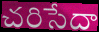
చరిసేదా